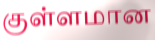
குள்ளமான